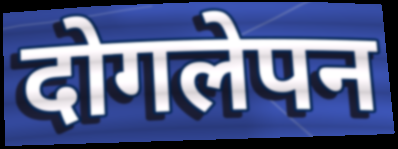
दोगलेपन